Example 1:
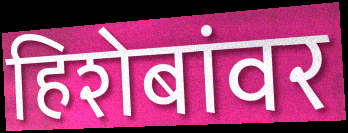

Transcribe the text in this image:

हिशेबांवर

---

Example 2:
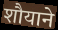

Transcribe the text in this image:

शौयाने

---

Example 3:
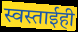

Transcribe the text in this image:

स्वस्ताईही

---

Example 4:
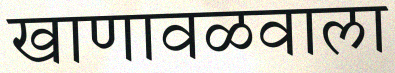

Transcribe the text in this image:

खाणावळवाला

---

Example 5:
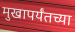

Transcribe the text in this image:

मुखापर्यंतच्या